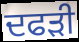
ਦਫੜੀ